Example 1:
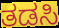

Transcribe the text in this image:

ತಡಸಿ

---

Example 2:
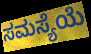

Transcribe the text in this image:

ಸಮಸ್ಯೆಯೆ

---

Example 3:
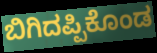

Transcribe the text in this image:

ಬಿಗಿದಪ್ಪಿಕೊಂಡ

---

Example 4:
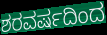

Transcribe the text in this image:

ಶರವರ್ಷದಿಂದ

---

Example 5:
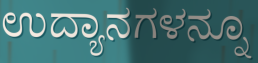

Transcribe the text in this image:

ಉದ್ಯಾನಗಳನ್ನೂ